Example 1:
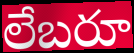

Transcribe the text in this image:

లేబరూ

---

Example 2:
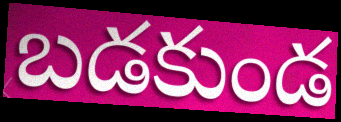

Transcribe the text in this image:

బడకుండ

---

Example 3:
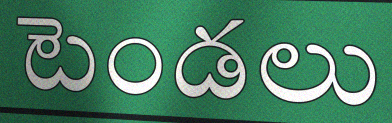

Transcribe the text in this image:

టెండలు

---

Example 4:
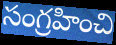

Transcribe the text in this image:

సంగ్రహించి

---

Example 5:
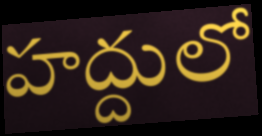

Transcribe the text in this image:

హద్దులో